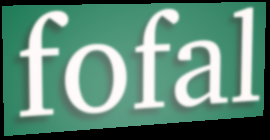
fofal